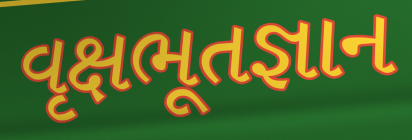
વૃક્ષભૂતજ્ઞાન